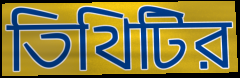
তিথিটির